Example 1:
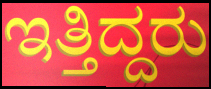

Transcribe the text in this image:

ಇತ್ತಿದ್ದರು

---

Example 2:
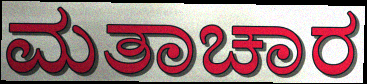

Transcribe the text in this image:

ಮತಾಚಾರ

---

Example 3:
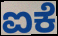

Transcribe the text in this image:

ಐಕೆ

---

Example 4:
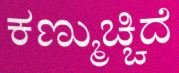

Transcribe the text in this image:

ಕಣ್ಮುಚ್ಚಿದೆ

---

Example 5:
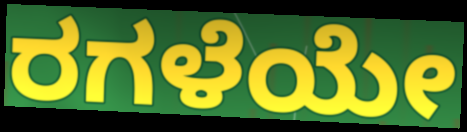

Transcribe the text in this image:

ರಗಳೆಯೇ